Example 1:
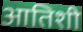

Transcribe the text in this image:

आतिशी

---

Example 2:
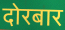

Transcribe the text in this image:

दोरबार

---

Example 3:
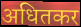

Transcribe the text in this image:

अधितकर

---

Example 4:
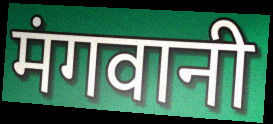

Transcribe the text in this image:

मंगवानी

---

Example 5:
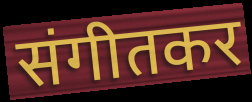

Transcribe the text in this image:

संगीतकर